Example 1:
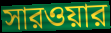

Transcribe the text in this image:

সারওয়ার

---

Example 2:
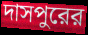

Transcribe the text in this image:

দাসপুরের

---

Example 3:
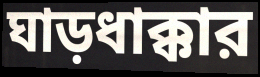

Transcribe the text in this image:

ঘাড়ধাক্কার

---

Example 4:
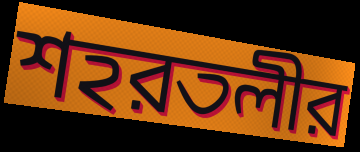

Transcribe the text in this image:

শহরতলীর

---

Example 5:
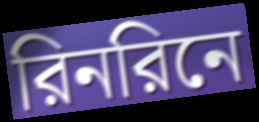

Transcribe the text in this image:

রিনরিনে